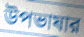
উপভাষার